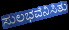
ಸುಲಭವೆನಿಸಿತು